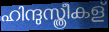
ഹിന്ദുസ്ത്രീകള്